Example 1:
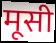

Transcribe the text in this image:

मूसी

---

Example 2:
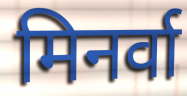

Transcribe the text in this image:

मिनर्वा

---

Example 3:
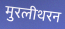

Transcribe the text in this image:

मुरलीथरन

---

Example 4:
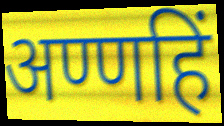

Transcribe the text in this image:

अण्णहिं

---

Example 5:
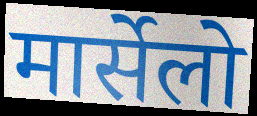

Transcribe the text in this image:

मार्सेलो